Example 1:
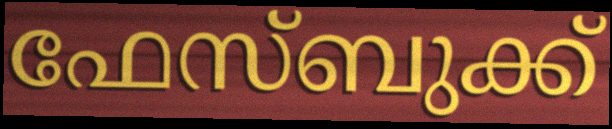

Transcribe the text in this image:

ഫേസ്ബുക്ക്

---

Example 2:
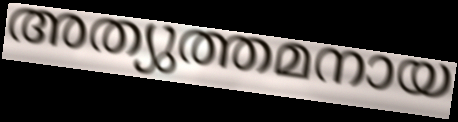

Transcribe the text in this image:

അത്യുത്തമനായ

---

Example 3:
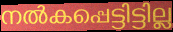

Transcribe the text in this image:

നൽകപ്പെട്ടിട്ടില്ല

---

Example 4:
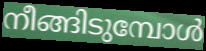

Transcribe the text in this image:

നീങ്ങിടുമ്പോൾ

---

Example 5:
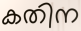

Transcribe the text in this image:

കതിന